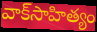
వాక్‌సాహిత్యం